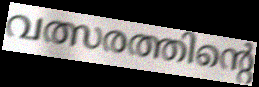
വത്സരത്തിന്റെ